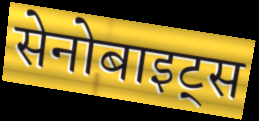
सेनोबाइट्स